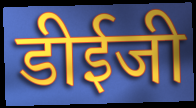
डीईजी